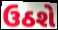
ઉઠશે